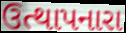
ઉત્થાપનારા